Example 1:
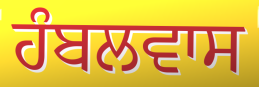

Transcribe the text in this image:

ਹੰਬਲਵਾਸ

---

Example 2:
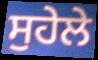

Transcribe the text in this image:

ਸੁਹੇਲੇ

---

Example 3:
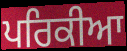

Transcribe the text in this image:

ਪਰਿਕੀਆ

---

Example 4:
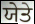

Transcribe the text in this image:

ਯੇਤੇ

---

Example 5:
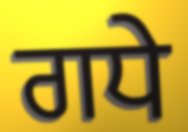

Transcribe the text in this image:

ਗਧੇ